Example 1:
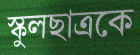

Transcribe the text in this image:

স্কুলছাত্রকে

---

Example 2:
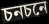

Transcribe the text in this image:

চনচনে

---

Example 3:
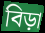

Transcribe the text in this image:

বিড়া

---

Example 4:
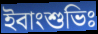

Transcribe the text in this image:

ইবাংশুভিঃ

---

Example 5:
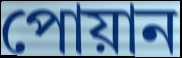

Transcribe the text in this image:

পোয়ান